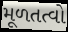
મૂળતત્વો